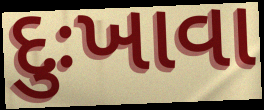
દુઃખાવા